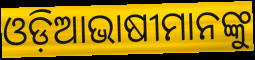
ଓଡ଼ିଆଭାଷୀମାନଙ୍କୁ